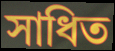
সাধিত